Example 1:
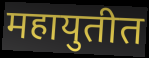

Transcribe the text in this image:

महायुतीत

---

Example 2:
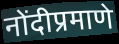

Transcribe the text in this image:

नोंदीप्रमाणे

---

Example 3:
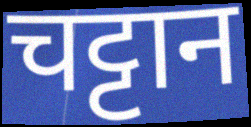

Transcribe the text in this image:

चट्टान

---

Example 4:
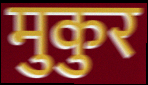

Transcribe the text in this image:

मुकुर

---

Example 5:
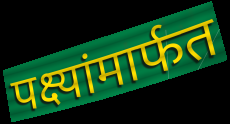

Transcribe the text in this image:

पक्ष्यांमार्फत